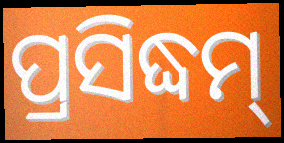
ପ୍ରସିଦ୍ଧମ୍